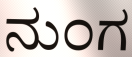
ನುಂಗ